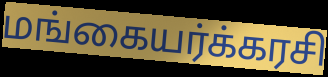
மங்கையர்க்கரசி